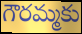
గౌరమ్మకు